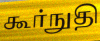
கூர்நுதி